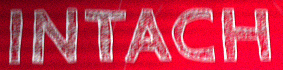
INTACH